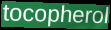
tocopherol